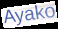
Ayako